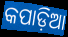
କପାଡ଼ିଆ